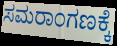
ಸಮರಾಂಗಣಕ್ಕೆ